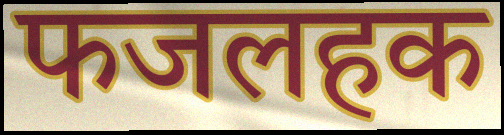
फजलहक